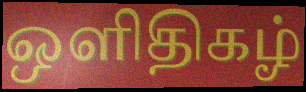
ஒளிதிகழ்